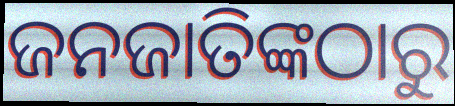
ଜନଜାତିଙ୍କଠାରୁ